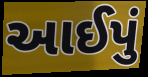
આઈપું